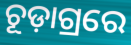
ଚୂଡ଼ାଗ୍ରରେ